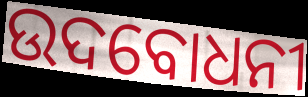
ଉଦବୋଧନୀ